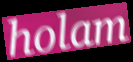
holam